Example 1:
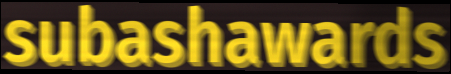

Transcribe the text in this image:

subashawards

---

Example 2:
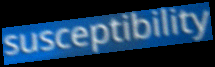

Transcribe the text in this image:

susceptibility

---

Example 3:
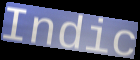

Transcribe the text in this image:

Indic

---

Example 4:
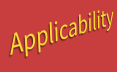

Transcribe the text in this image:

Applicability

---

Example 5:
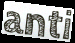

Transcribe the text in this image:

anti